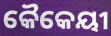
କୈକେୟୀ